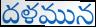
దళమున